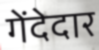
गेंदेदार